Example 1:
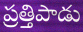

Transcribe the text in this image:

ప్రత్తిపాడు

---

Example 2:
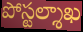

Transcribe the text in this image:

పోస్టల్శాఖ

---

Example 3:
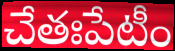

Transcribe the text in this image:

చేతఃపేటీం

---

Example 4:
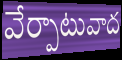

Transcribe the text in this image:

వేర్పాటువాద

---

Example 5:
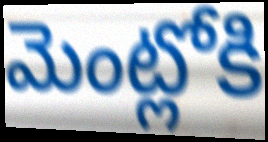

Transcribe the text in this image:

మెంట్లోకి